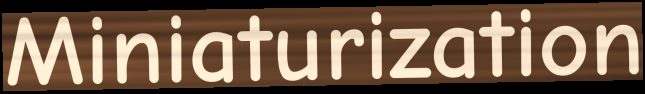
Miniaturization